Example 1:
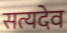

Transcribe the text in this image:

सत्यदेव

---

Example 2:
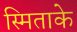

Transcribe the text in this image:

स्मिताके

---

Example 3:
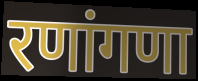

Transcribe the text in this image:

रणांगणा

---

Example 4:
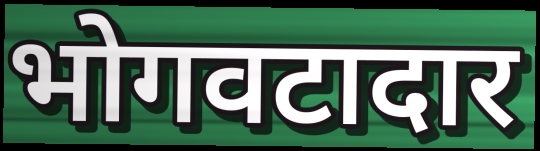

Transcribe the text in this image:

भोगवटादार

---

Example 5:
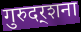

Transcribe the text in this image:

गुरुदर्शना